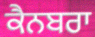
ਕੈਨਬਰਾ